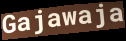
Gajawaja